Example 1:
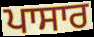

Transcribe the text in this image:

ਪਾਸਾਰ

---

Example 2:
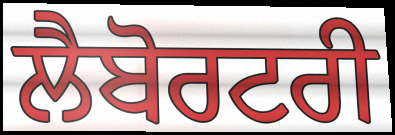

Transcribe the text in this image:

ਲੈਬੋਰਟਰੀ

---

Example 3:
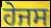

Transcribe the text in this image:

ਹੇਜਸ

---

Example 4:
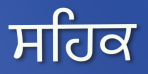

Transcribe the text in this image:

ਸਹਿਕ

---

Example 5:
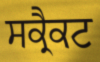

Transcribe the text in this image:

ਸਕ੍ਰੈਕਟ